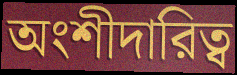
অংশীদারিত্ব